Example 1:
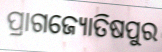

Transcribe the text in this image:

ପ୍ରାଗଜ୍ୟୋତିଷପୁର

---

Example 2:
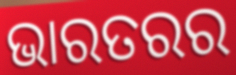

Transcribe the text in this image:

ଭାରତରର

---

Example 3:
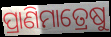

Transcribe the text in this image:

ପ୍ରାଣିମାତ୍ରେଷୁ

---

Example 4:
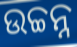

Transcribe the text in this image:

ଉଚ୍ଚନ୍ନ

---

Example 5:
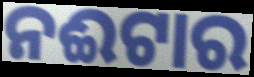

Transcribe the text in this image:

ନଈଟାର